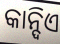
କାନ୍ଦିଏ